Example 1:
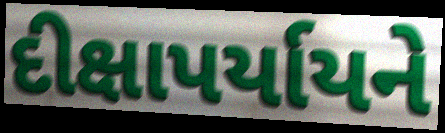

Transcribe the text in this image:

દીક્ષાપર્યાયને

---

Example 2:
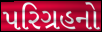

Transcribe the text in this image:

પરિગ્રહનો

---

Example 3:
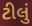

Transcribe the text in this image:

ટીલું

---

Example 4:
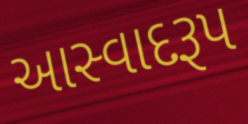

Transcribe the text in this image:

આસ્વાદરૂપ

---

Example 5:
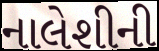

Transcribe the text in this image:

નાલેશીની